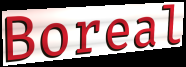
Boreal